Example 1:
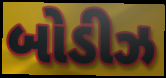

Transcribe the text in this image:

બોડીઝ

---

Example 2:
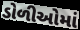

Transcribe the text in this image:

ડોળીઓમાં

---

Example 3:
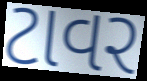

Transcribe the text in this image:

ટાવર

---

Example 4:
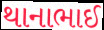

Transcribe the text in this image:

થાનાભાઈ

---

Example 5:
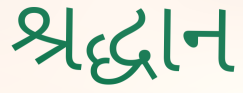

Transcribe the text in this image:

શ્રદ્ધાન